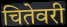
चितेवरी